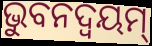
ଭୁବନଦ୍ଵୟମ୍